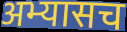
अभ्यासच